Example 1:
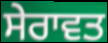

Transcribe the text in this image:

ਸੇਰਾਵਤ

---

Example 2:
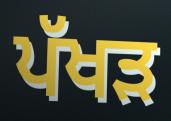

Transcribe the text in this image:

ਪੱਖੜ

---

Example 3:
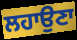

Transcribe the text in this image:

ਲਹਾਉਣਾ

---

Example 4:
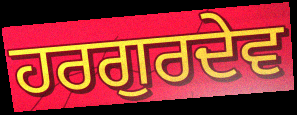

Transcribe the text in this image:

ਹਰਗੁਰਦੇਵ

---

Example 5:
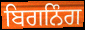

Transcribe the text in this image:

ਬਿਗਨਿੰਗ